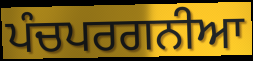
ਪੰਚਪਰਗਨੀਆ